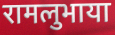
रामलुभाया